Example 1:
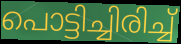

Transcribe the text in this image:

പൊട്ടിച്ചിരിച്ച്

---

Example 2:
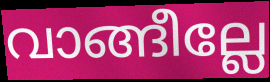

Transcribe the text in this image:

വാങ്ങീല്ലേ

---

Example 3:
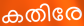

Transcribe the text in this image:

കതിരേ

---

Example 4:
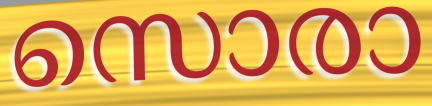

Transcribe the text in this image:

സൊരാ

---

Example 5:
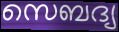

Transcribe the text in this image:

സെബദ്യ